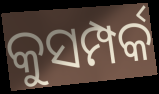
କୁସମ୍ପର୍କ